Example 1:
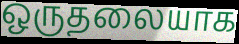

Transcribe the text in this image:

ஒருதலையாக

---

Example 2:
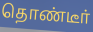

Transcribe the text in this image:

தொண்டீர்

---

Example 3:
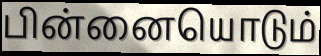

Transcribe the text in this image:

பின்னையொடும்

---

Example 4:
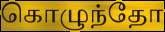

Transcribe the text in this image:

கொழுந்தோ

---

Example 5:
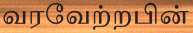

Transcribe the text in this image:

வரவேற்றபின்